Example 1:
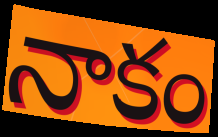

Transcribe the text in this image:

నాకం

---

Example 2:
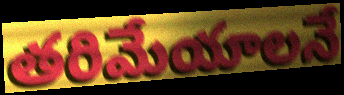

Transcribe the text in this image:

తరిమేయాలనే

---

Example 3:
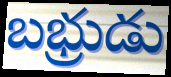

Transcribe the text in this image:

బభ్రుడు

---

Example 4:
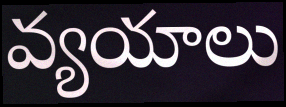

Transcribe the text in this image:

వ్యయాలు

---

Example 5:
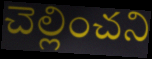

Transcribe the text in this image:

చెల్లించని